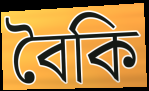
বৈকি